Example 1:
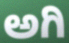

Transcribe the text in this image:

ಅಗಿ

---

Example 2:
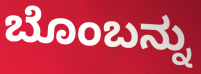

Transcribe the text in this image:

ಬೊಂಬನ್ನು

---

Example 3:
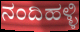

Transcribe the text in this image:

ನಂದಿಹಳ್ಳಿ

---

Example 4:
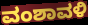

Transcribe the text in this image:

ವಂಶಾವಳಿ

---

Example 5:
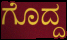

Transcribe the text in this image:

ಗೊದ್ದ